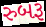
રુબરૂ